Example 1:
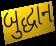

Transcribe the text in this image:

બુદ્ધાન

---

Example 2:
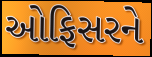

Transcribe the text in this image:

ઓફિસરને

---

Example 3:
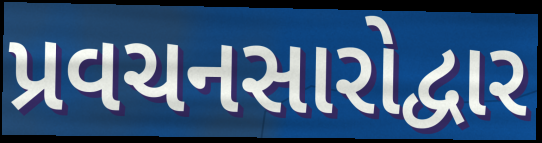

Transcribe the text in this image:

પ્રવચનસારોદ્વાર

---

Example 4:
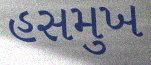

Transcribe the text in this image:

હસમુખ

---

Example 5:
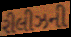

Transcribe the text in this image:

રીલીઝની